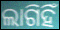
ଲାଗିହିଁ